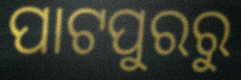
ପାଟପୁରରୁ